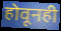
होवूनही